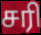
சரி